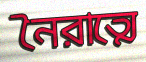
নৈরাত্মে